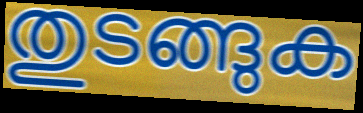
തുടങ്ങുക